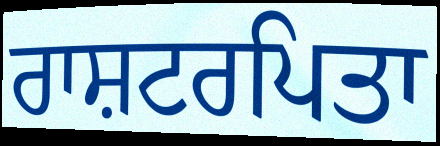
ਰਾਸ਼ਟਰਪਿਤਾ